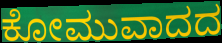
ಕೋಮುವಾದದ